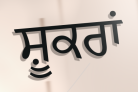
ਸ਼ੂਕਰਾਂ